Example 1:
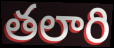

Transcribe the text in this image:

తలారి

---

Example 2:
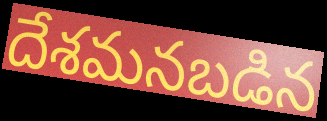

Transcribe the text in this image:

దేశమనబడిన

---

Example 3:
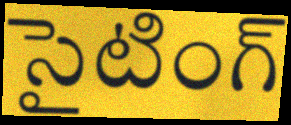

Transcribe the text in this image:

సైటింగ్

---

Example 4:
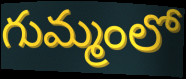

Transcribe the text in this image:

గుమ్మంలో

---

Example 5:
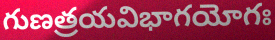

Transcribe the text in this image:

గుణత్రయవిభాగయోగః